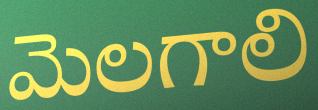
మెలగాలి